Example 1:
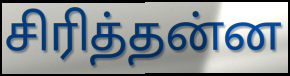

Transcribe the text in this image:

சிரித்தன்ன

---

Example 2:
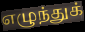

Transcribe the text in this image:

எழுந்துக்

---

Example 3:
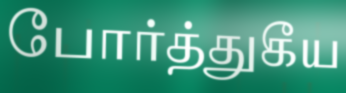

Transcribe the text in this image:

போர்த்துகீய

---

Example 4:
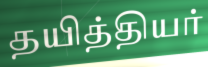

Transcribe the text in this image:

தயித்தியர்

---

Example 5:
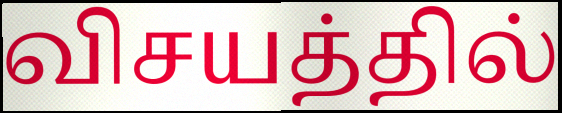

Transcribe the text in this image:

விசயத்தில்